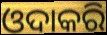
ଓଦାକରି